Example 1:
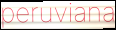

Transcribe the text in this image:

peruviana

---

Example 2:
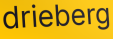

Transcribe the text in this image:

drieberg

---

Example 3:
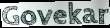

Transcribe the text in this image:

Govekar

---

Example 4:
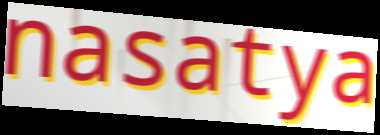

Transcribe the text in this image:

nasatya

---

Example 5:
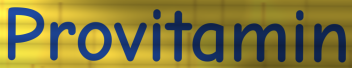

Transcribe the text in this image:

Provitamin